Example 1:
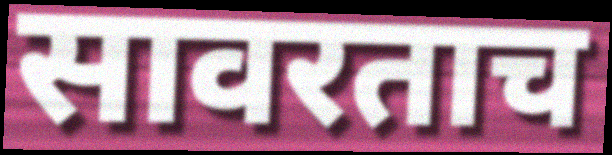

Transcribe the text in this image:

सावरताच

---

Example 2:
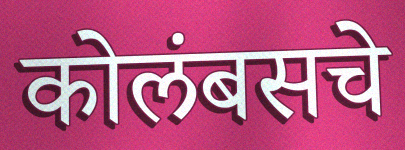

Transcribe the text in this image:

कोलंबसचे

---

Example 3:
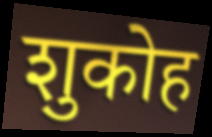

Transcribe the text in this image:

शुकोह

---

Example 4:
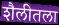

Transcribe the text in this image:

शैलीतला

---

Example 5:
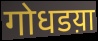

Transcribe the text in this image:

गोधडय़ा